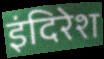
इंदिरेश